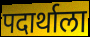
पदार्थाला